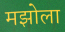
मझोला